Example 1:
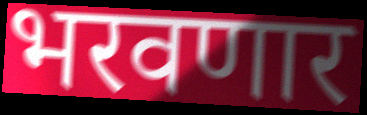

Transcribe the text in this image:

भरवणार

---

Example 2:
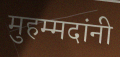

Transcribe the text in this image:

मुहम्मदांनी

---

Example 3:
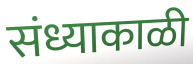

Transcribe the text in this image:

संध्याकाळी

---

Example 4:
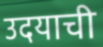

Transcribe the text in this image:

उदयाची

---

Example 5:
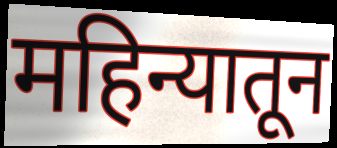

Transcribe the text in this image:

महिन्यातून